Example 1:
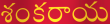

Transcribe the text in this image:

శంకరాయ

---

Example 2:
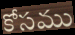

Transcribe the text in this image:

కోసము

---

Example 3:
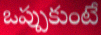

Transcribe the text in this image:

ఒప్పుకుంటే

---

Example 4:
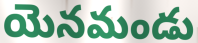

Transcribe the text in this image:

యెనమండు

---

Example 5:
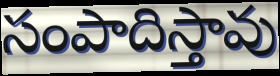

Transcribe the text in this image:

సంపాదిస్తావు